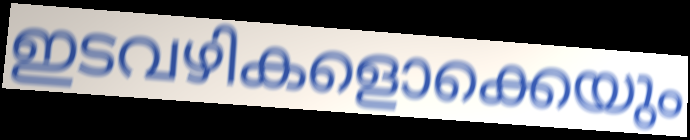
ഇടവഴികളൊക്കെയും